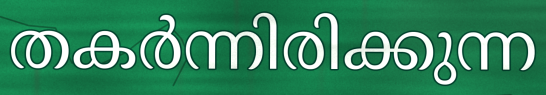
തകർന്നിരിക്കുന്ന